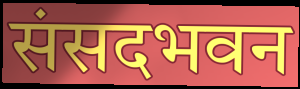
संसदभवन